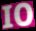
IO